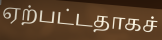
ஏற்பட்டதாகச்